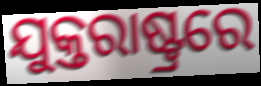
ଯୁକ୍ତରାଷ୍ଟ୍ରରେ